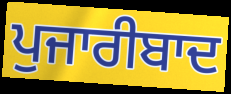
ਪੁਜਾਰੀਬਾਦ